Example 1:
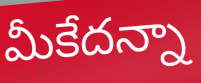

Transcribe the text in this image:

మీకేదన్నా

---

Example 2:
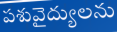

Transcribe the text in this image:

పశువైద్యులను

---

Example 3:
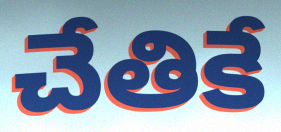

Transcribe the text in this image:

చేతికే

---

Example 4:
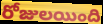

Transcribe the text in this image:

రోజులయింది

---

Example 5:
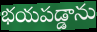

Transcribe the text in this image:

భయపడ్డాను